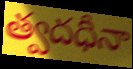
త్వదధీనా